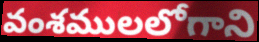
వంశములలోగాని